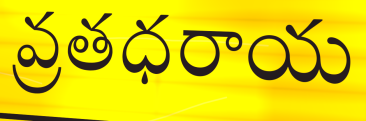
వ్రతధరాయ